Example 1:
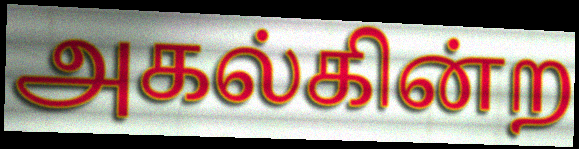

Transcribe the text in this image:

அகல்கின்ற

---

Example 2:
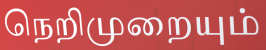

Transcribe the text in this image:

நெறிமுறையும்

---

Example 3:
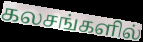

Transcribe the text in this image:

கலசங்களில்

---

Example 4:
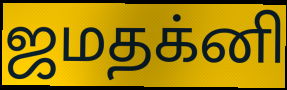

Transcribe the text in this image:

ஜமதக்னி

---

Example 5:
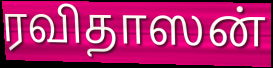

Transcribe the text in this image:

ரவிதாஸன்